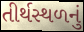
તીર્થસ્થળનું